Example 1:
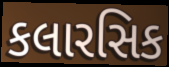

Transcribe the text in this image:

કલારસિક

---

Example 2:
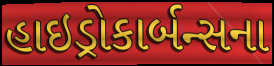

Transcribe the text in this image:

હાઇડ્રોકાર્બન્સના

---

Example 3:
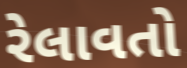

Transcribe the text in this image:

રેલાવતો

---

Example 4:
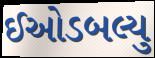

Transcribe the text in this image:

ઈઓડબલ્યુ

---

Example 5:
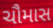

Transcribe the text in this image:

ચૌમાસ